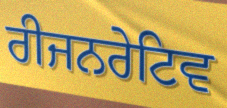
ਰੀਜਨਰੇਟਿਵ